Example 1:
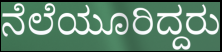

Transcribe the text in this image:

ನೆಲೆಯೂರಿದ್ದರು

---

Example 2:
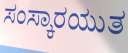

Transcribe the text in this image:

ಸಂಸ್ಕಾರಯುತ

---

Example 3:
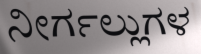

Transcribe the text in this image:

ನೀರ್ಗಲ್ಲುಗಳ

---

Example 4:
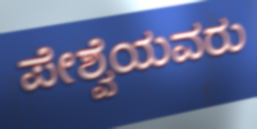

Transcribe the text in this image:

ಪೇಶ್ವೆಯವರು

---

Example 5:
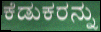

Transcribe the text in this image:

ಕೆಡುಕರನ್ನು